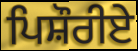
ਪਿਸ਼ੌਰੀਏ